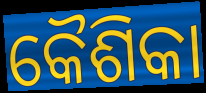
କୈଶିକା